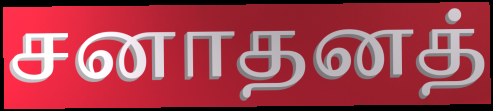
சனாதனத்